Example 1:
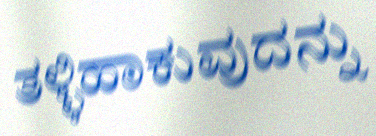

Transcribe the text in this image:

ತಳ್ಳಿಹಾಕುವುದನ್ನು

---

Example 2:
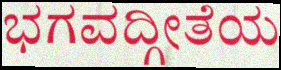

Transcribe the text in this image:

ಭಗವದ್ಗೀತೆಯ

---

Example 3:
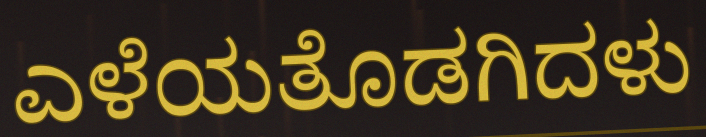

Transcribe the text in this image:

ಎಳೆಯತೊಡಗಿದಳು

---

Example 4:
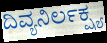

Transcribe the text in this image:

ದಿವ್ಯನಿರ್ಲಕ್ಷ್ಯ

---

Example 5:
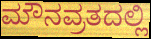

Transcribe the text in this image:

ಮೌನವ್ರತದಲ್ಲಿ